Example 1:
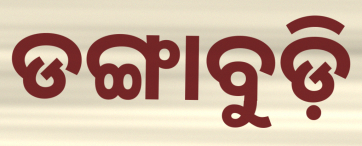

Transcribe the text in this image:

ଡଙ୍ଗାବୁଡ଼ି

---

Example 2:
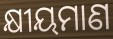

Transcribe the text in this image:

କ୍ଷୀୟମାଣ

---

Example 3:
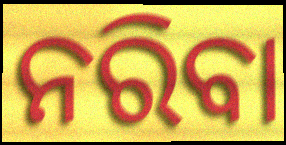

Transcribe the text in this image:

ନରିବା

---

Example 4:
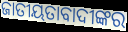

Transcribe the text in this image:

ଜାତୀୟତାବାଦୀଙ୍କର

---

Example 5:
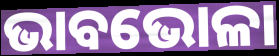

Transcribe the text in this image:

ଭାବଭୋଳା